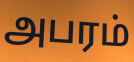
அபரம்